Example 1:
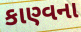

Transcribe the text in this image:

કાણ્વના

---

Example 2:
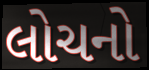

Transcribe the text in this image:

લોચનો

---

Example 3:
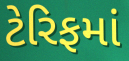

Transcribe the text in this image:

ટેરિફમાં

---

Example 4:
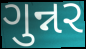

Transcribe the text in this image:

ગુન્નર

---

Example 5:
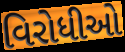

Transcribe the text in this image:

વિરોધીઓ